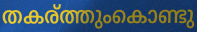
തകര്ത്തുംകൊണ്ടു